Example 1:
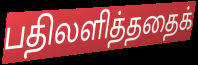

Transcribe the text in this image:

பதிலளித்ததைக்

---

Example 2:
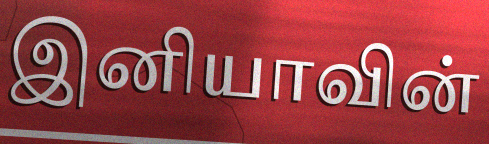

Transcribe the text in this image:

இனியாவின்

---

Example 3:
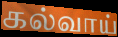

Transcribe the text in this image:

கல்வாய்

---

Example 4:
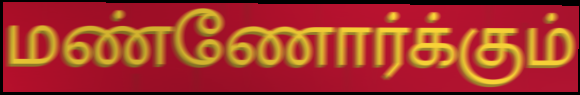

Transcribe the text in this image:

மண்ணோர்க்கும்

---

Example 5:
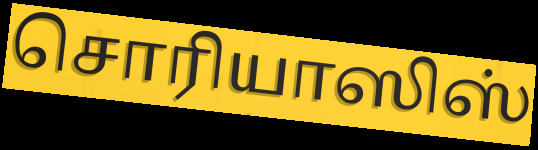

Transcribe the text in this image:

சொரியாஸிஸ்